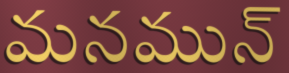
మనమున్